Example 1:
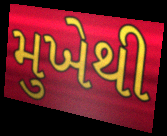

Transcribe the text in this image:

મુખેથી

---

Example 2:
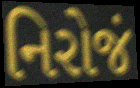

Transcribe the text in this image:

નિરોજં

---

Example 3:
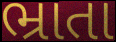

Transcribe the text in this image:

ભ્રાતા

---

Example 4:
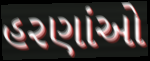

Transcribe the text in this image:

હરણાંઓ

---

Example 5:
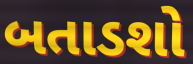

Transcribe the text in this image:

બતાડશો